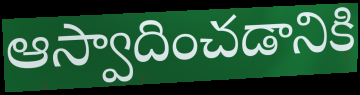
ఆస్వాదించడానికి